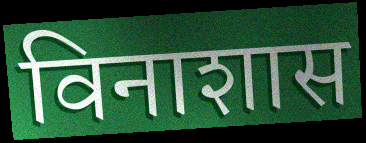
विनाशास